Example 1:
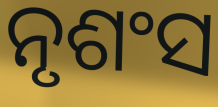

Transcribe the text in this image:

ନୃଶଂସ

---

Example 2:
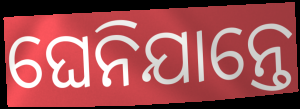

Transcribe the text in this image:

ଘେନିଯାନ୍ତେ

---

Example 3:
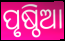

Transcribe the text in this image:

ପୃଷ୍ଠିଆ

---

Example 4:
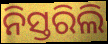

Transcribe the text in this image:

ନିସ୍ତରିଲି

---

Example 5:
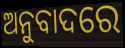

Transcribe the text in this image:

ଅନୁବାଦରେ